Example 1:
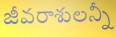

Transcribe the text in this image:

జీవరాశులన్నీ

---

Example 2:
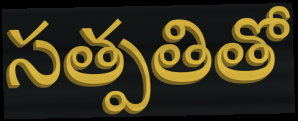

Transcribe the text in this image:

సత్పతితో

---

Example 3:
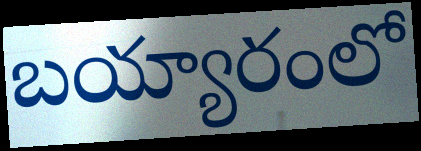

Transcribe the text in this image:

బయ్యారంలో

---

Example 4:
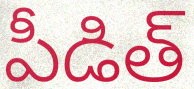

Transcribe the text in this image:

పీడిత్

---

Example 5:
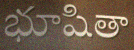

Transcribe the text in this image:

భూషితా